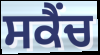
ਸਕੈਂਚ